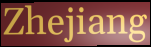
Zhejiang